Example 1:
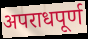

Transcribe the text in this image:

अपराधपूर्ण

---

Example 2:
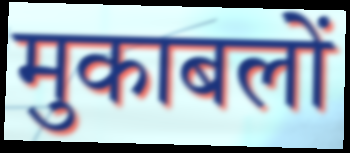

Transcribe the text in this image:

मुकाबलों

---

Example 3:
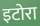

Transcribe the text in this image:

इटोरा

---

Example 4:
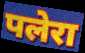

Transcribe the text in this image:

पलेरा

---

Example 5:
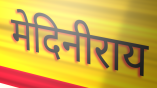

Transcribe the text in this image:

मेदिनीराय